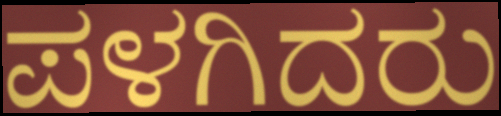
ಪಳಗಿದರು